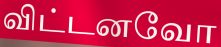
விட்டனவோ